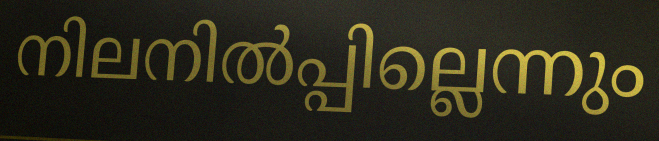
നിലനിൽപ്പില്ലെന്നും